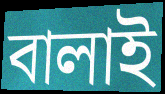
বালাই